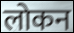
लोकन